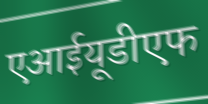
एआईयूडीएफ